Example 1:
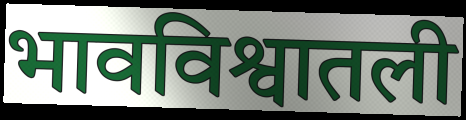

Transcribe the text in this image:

भावविश्वातली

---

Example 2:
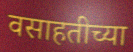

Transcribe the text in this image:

वसाहतीच्या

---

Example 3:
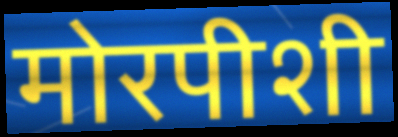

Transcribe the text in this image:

मोरपीशी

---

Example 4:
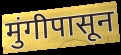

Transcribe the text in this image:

मुंगीपासून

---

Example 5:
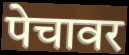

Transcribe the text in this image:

पेचावर